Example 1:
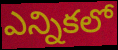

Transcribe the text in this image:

ఎన్నికలో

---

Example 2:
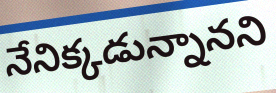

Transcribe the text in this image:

నేనిక్కడున్నానని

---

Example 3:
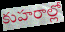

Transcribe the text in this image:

కుహరాల్లో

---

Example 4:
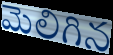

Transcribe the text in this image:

మెలిగిన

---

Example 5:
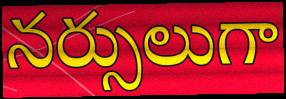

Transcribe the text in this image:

నర్సులుగా